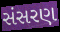
સંસરણ